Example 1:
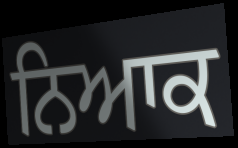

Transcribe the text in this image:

ਨਿਆਕ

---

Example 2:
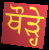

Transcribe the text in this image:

ਥੌੜ੍ਹੇ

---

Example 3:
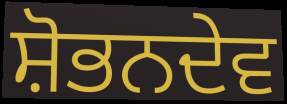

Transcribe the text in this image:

ਸ਼ੋਭਨਦੇਵ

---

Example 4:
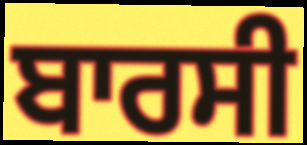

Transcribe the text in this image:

ਬਾਰਸੀ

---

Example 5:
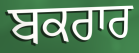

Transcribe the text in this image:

ਬਕਰਾਰ